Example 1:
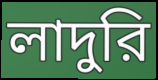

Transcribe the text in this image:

লাদুরি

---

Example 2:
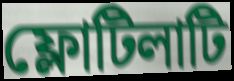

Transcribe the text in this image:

ফ্লোটিলাটি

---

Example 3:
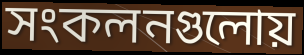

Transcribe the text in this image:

সংকলনগুলোয়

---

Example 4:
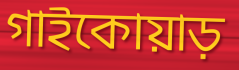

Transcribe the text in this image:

গাইকোয়াড়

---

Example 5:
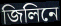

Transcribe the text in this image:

জিলিনে